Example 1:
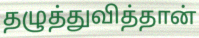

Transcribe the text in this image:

தழுத்துவித்தான்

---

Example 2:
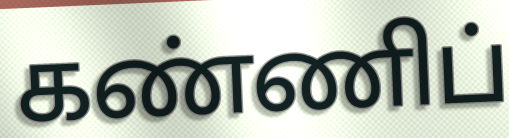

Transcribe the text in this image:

கண்ணிப்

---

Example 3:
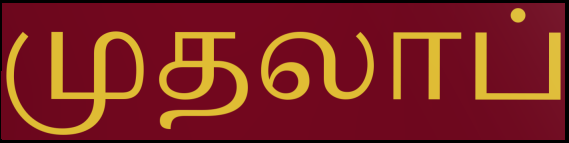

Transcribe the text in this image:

முதலாப்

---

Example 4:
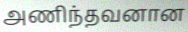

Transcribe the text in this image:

அணிந்தவனான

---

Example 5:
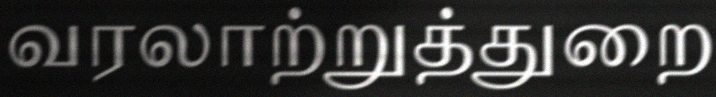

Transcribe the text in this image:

வரலாற்றுத்துறை